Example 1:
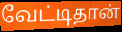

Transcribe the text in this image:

வேட்டிதான்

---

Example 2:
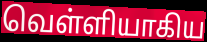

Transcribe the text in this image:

வெள்ளியாகிய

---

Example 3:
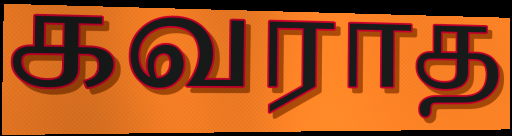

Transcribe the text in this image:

கவராத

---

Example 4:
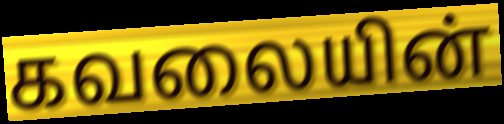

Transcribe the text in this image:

கவலையின்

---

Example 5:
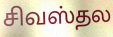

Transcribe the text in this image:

சிவஸ்தல